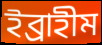
ইব্রাহীম